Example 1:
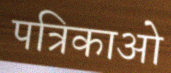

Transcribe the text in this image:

पत्रिकाओ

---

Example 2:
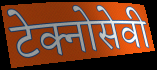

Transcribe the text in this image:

टेक्नोसेवी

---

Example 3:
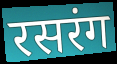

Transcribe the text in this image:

रसरंग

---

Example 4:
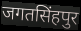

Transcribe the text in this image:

जगतसिंहपुर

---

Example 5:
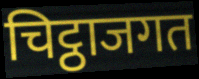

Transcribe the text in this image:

चिट्ठाजगत